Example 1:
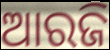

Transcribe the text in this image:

ଆରଜି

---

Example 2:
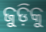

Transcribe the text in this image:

ଜୁଡ଼ିକୁ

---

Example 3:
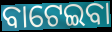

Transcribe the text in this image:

ବାଟେଇବା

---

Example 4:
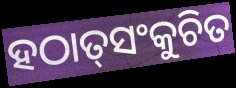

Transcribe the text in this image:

ହଠାତ୍‌ସଂକୁଚିତ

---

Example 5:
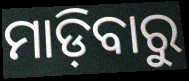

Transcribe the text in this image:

ମାଡ଼ିବାରୁ